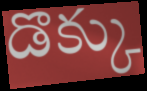
డొక్కు